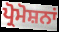
ਪ੍ਰੋਮੋਸ਼ਨਾਂ